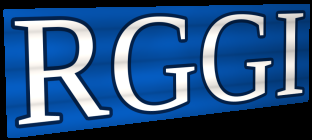
RGGI